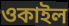
ওকাইল